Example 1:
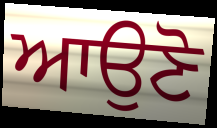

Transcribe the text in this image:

ਆਉਣੋ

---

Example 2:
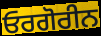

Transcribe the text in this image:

ਓਰਗੋਰੀਨ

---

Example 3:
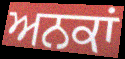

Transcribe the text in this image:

ਅਨਕਾਂ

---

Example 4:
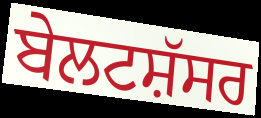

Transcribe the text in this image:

ਬੇਲਟਸ਼ੱਸਰ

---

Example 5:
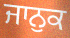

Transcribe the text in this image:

ਜਾਨੁਕ